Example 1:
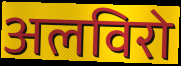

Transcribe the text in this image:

अलविरो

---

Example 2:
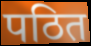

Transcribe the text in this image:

पठित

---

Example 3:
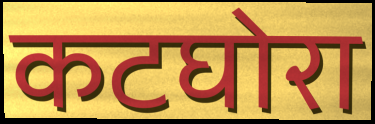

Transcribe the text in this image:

कटघोरा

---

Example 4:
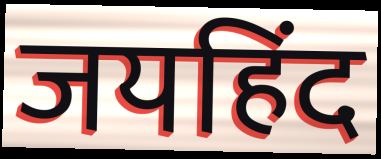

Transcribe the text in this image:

जयहिंद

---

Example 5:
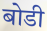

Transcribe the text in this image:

बोडी